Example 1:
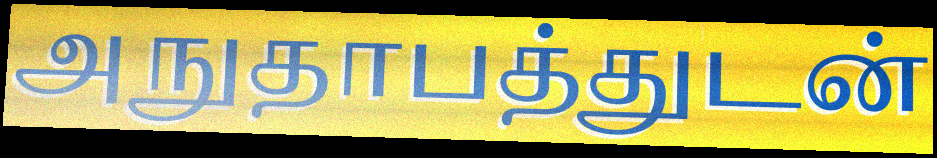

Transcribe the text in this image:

அநுதாபத்துடன்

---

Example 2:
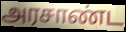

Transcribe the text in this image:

அரசாண்ட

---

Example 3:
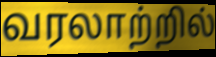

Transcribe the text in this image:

வரலாற்றில்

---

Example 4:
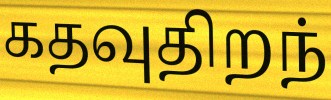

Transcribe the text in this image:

கதவுதிறந்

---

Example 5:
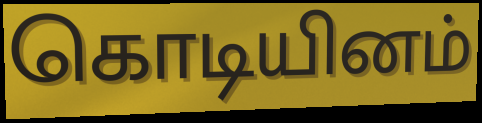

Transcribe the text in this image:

கொடியினம்